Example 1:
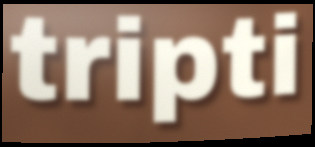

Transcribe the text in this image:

tripti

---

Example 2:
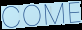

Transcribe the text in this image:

COME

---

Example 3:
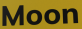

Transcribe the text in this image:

Moon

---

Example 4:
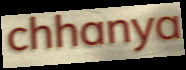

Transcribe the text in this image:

chhanya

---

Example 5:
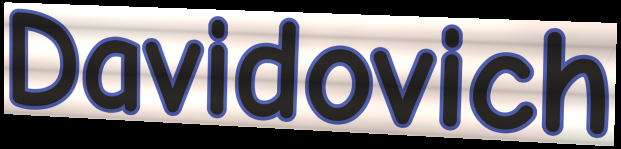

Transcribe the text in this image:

Davidovich